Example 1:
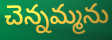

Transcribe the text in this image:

చెన్నమ్మను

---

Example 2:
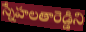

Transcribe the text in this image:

స్నేహలతారెడ్డిని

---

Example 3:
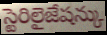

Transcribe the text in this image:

స్టెరిలైజేషన్కు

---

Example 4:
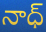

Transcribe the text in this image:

నాధ్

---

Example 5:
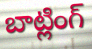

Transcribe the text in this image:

బాట్లింగ్